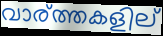
വാര്ത്തകളില്